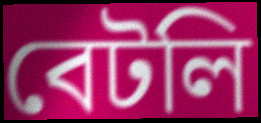
বেটলি